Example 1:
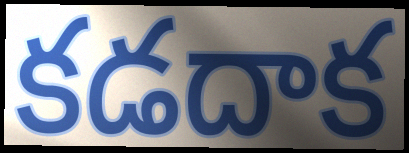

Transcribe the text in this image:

కడదాక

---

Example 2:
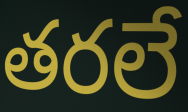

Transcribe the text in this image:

తరలే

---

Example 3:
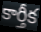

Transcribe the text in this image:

కార్తీక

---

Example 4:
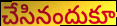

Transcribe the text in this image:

చేసినందుకూ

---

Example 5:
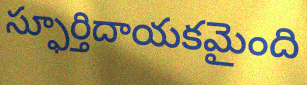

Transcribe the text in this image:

స్ఫూర్తిదాయకమైంది